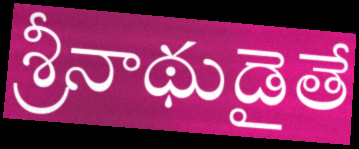
శ్రీనాథుడైతే